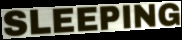
SLEEPING